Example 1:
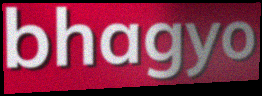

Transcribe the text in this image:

bhagyo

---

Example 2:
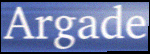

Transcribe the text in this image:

Argade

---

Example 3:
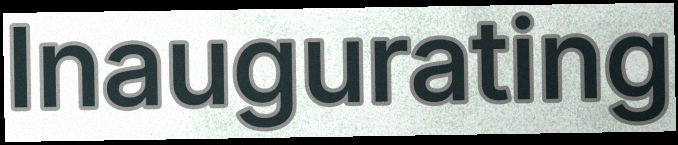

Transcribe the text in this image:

Inaugurating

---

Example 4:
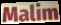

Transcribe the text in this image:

Malim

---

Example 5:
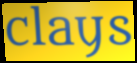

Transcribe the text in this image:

clays